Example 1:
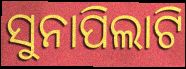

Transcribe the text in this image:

ସୁନାପିଲାଟି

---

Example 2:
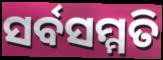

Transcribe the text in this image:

ସର୍ବସମ୍ମତି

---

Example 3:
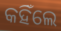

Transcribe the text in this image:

କହିଁଲେ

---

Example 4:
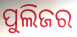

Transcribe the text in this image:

ପୁଲିଜର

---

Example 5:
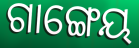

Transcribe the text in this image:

ଗାଙ୍ଗେୟ